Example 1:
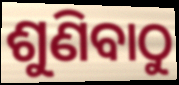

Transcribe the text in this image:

ଶୁଣିବାଠୁ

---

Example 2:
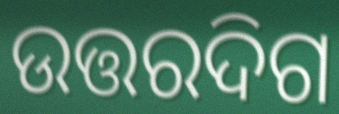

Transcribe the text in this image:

ଉତ୍ତରଦିଗ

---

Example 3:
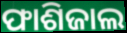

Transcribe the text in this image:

ଫାଶିଜାଲ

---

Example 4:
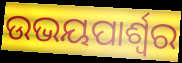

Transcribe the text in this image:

ଉଭୟପାର୍ଶ୍ୱର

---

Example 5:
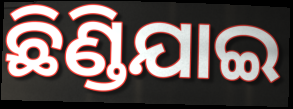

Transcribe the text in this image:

ଛିଣ୍ଡିଯାଇ